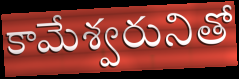
కామేశ్వరునితో